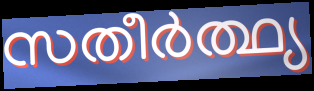
സതീർത്ഥ്യ